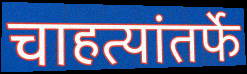
चाहत्यांतर्फे